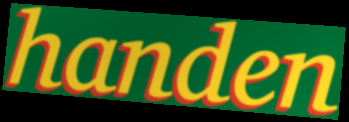
handen